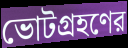
ভোটগ্রহণের